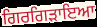
ਗਿਰਗਿੜਾਇਆ